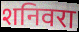
शनिवरा